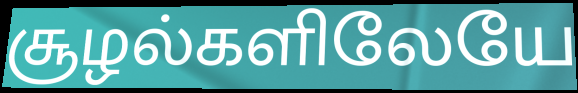
சூழல்களிலேயே